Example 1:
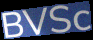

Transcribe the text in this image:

BVSc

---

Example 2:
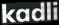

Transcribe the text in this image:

kadli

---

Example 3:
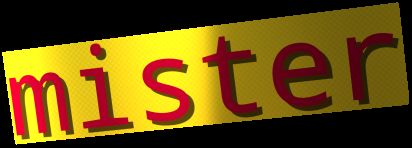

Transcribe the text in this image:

mister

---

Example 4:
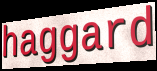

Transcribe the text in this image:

haggard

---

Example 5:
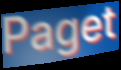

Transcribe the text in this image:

Paget